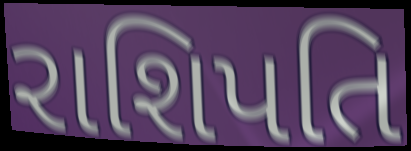
રાશિપતિ